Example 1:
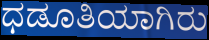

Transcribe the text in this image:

ಧಡೂತಿಯಾಗಿರು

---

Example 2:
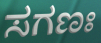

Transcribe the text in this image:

ಸಗಣಃ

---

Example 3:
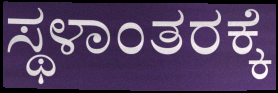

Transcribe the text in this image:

ಸ್ಥಳಾಂತರಕ್ಕೆ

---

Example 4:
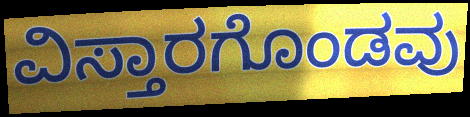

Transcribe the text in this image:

ವಿಸ್ತಾರಗೊಂಡವು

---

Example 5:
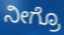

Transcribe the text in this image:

ನೀಗ್ರೊ